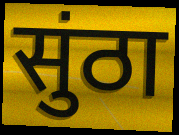
सुंठा